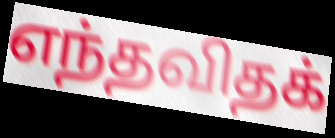
எந்தவிதக்